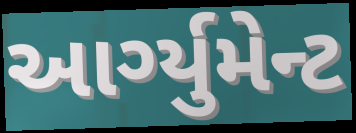
આર્ગ્યુમેન્ટ